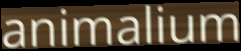
animalium